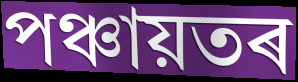
পঞ্চায়তৰ